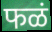
फळं